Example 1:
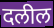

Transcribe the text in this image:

दलील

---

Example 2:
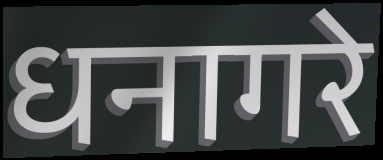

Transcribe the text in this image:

धनागरे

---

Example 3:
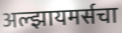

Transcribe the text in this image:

अल्झायमर्सचा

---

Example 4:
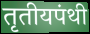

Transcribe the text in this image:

तृतीयपंथी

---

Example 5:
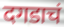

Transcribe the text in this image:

दगडाचं